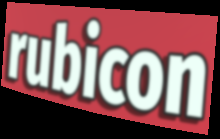
rubicon